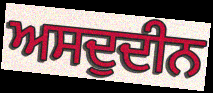
ਅਸਦੁਦੀਨ